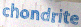
chondrite